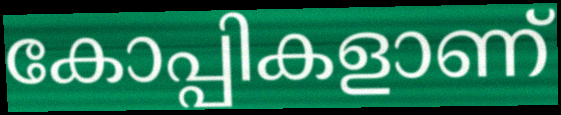
കോപ്പികളാണ്